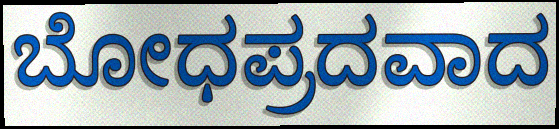
ಬೋಧಪ್ರದವಾದ